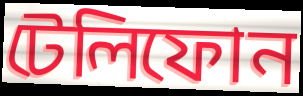
টেলিফোন